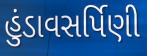
હુંડાવસર્પિણી